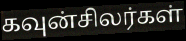
கவுன்சிலர்கள்